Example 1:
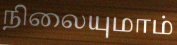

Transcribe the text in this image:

நிலையுமாம்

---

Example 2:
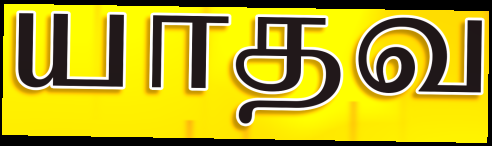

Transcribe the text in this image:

யாதவ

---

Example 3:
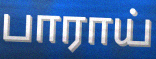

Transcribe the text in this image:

பாராய்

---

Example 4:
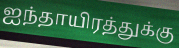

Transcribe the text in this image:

ஐந்தாயிரத்துக்கு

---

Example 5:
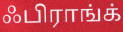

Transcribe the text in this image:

ஃபிராங்க்